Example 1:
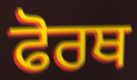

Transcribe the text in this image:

ਫੋਰਥ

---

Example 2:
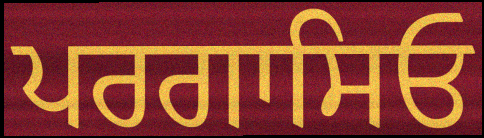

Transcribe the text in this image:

ਪਰਗਾਸਿਓ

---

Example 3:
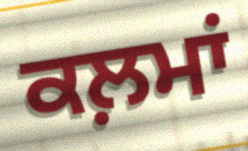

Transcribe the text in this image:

ਕਲ਼ਮਾਂ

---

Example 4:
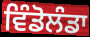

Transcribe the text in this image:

ਵਿੰਡੋਲੰਡਾ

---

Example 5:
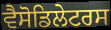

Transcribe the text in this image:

ਵੈਸੋਡਿਲੇਟਰਸ